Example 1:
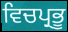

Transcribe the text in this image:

ਵਿਚਪ੍ਰਭੂ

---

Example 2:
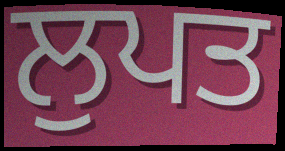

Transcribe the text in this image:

ਲੁਪਤ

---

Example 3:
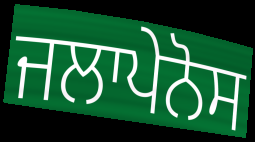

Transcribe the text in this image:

ਜਲਾਪੇਨੋਸ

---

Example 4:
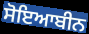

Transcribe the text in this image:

ਸੋਇਆਬੀਨ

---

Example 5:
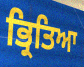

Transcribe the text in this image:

ਭ੍ਰਿਤਿਆ